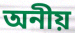
অনীয়